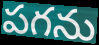
పగను